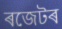
ৰজেটৰ